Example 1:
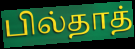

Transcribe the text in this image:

பில்தாத்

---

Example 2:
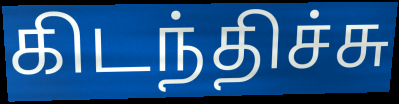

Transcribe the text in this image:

கிடந்திச்சு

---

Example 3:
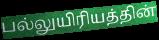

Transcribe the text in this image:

பல்லுயிரியத்தின்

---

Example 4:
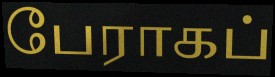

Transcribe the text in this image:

பேராகப்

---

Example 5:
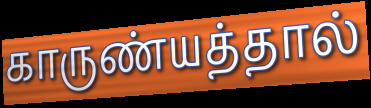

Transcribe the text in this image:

காருண்யத்தால்